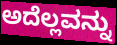
ಅದೆಲ್ಲವನ್ನು